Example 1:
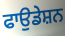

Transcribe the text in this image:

ਫਾਉਡੇਸ਼ਨ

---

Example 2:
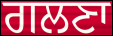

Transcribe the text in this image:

ਗਲਣਾ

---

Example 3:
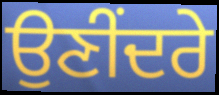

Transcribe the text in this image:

ਉਣੀਂਦਰੇ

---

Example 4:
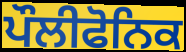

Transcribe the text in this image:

ਪੌਲੀਫੋਨਿਕ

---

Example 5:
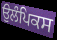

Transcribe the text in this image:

ਉਲੰਪਿਕਸ